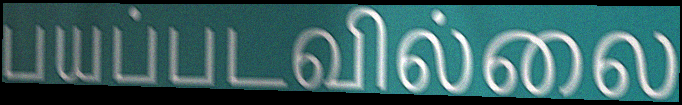
பயப்படவில்லை